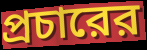
প্রচারের